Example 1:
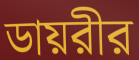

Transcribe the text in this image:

ডায়রীর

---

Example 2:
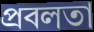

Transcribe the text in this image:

প্রবলতা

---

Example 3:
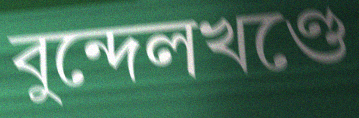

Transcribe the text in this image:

বুন্দেলখণ্ডে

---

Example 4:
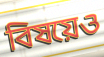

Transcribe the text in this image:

বিষয়েও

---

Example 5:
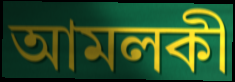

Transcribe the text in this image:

আমলকী